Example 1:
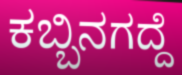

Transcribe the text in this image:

ಕಬ್ಬಿನಗದ್ದೆ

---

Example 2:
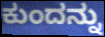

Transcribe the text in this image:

ಕುಂದನ್ನು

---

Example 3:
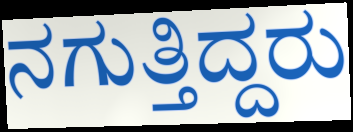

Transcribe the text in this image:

ನಗುತ್ತಿದ್ದರು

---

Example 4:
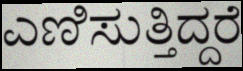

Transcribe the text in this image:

ಎಣಿಸುತ್ತಿದ್ದರೆ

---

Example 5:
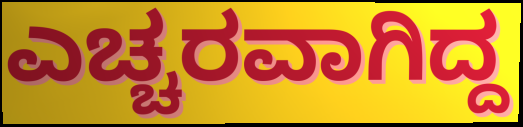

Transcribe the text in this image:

ಎಚ್ಚರವಾಗಿದ್ದ